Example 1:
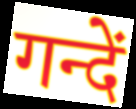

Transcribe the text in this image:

गन्दें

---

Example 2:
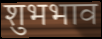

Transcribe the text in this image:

शुभभाव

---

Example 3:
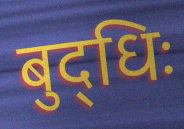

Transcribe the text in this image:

बुद्धिः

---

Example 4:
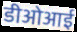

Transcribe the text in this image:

डीओआई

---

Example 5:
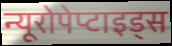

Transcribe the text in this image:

न्यूरोपेप्टाइड्स